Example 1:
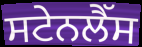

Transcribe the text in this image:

ਸਟੇਨਲੈੱਸ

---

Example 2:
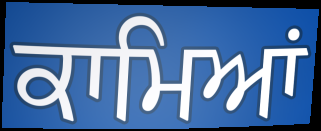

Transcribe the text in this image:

ਕਾਮਿਆਂ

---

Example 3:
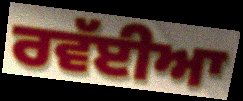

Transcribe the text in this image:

ਰਵੱਈਆ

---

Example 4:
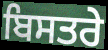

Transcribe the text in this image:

ਬਿਸਤਰੇ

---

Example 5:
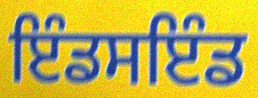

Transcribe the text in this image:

ਇੰਡਸਇੰਡ